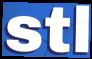
stl